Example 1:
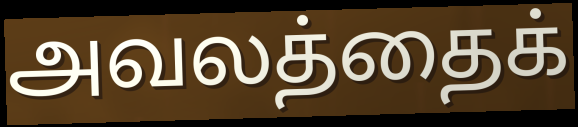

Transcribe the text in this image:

அவலத்தைக்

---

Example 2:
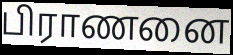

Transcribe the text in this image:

பிராணனை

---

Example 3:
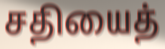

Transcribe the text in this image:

சதியைத்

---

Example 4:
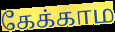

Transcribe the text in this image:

கேக்காம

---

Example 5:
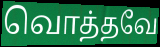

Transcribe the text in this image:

வொத்தவே